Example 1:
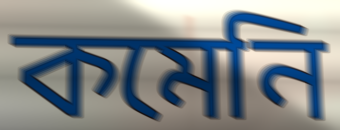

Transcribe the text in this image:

কমেনি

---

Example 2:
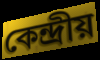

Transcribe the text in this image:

কেন্দ্রীয়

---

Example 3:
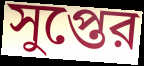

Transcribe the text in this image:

সুপ্তের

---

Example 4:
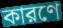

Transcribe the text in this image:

কারণে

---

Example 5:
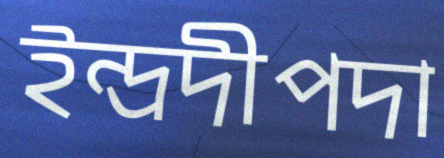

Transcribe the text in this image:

ইন্দ্রদীপদা